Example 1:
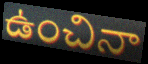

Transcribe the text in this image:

ఉంచినా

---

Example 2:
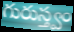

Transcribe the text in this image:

గురుస్త్వం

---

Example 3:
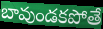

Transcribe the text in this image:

బావుండకపోతే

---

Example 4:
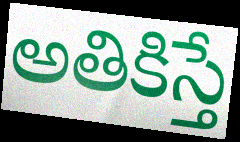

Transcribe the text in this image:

అతికిస్తే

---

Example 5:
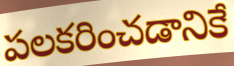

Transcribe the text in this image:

పలకరించడానికే